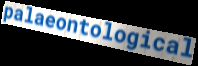
palaeontological